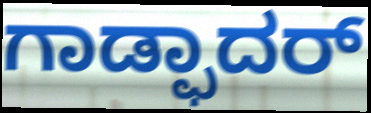
ಗಾಡ್ಫಾದರ್